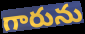
గారును